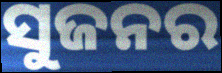
ସୁଜନର